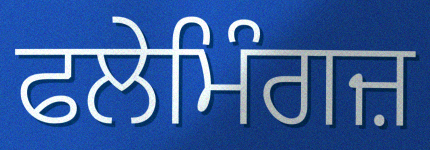
ਫਲੇਮਿੰਗਜ਼